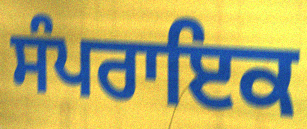
ਸੰਪਰਾਇਕ